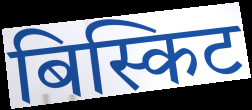
बिस्किट